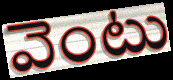
వెంటు